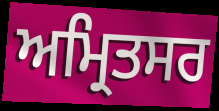
ਅਮ੍ਰਿਤਸਰ